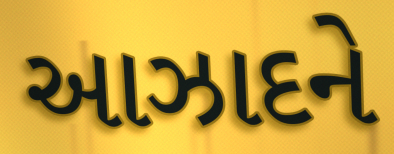
આઝાદને